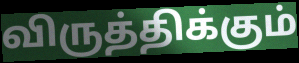
விருத்திக்கும்